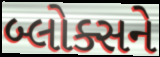
બ્લોક્સને